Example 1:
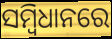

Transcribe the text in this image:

ସମ୍ବିଧାନରେ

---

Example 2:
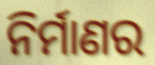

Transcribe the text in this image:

ନିର୍ମାଣର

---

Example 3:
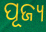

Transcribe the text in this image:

ପୂଜ୍ୟ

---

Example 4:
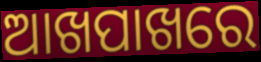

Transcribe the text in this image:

ଆଖପାଖରେ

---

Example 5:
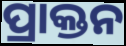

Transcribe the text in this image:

ପ୍ରାକ୍ତନ